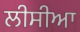
ਲੀਸੀਆ